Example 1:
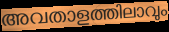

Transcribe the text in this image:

അവതാളത്തിലാവും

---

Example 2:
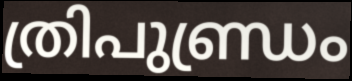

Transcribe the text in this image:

ത്രിപുണ്ഡ്രം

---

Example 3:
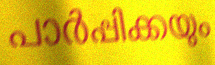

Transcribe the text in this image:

പാർപ്പിക്കയും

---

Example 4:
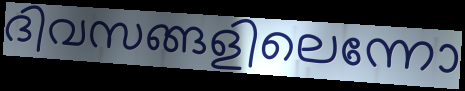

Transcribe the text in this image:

ദിവസങ്ങളിലെന്നോ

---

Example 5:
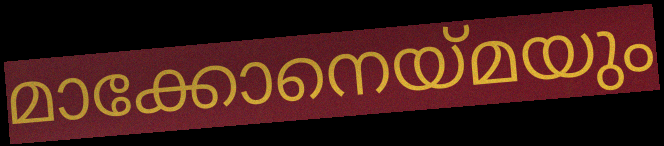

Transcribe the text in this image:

മാക്കോനെയ്മയും